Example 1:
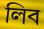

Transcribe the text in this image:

লিব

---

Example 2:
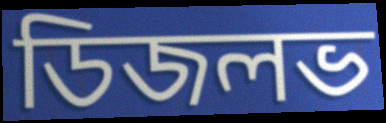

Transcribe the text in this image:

ডিজলভ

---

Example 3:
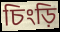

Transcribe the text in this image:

চিংড়ি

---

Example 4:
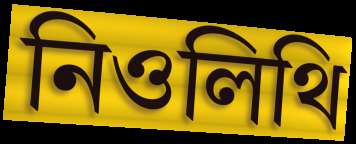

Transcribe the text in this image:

নিওলিথি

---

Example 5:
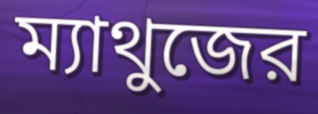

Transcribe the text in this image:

ম্যাথুজের